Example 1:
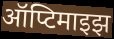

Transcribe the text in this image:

ऑप्टिमाइझ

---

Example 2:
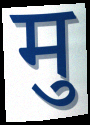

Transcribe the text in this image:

मु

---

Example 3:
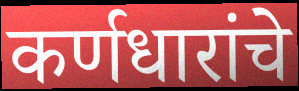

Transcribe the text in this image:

कर्णधारांचे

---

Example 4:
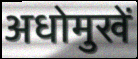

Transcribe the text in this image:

अधोमुखें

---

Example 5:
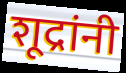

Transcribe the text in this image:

शूद्रांनी